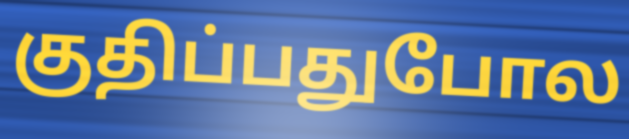
குதிப்பதுபோல